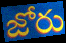
జోరు